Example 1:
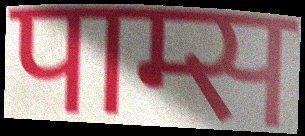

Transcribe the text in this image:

पाम्स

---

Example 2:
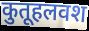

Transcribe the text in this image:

कुतूहलवश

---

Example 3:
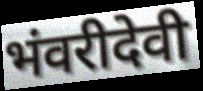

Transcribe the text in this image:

भंवरीदेवी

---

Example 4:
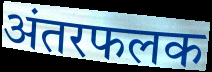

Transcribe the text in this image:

अंतरफलक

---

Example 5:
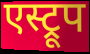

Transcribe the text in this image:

एस्ट्रूप